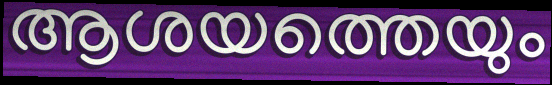
ആശയത്തെയും